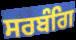
ਸਰਬੰਗਿ